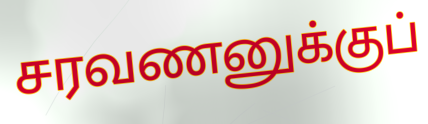
சரவணனுக்குப்